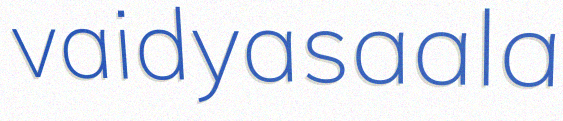
vaidyasaala